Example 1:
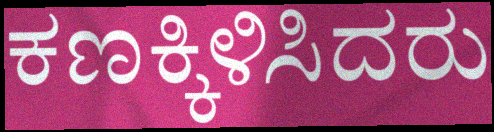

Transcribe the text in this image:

ಕಣಕ್ಕಿಳಿಸಿದರು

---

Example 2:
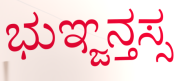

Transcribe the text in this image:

ಭುಞ್ಜನ್ತಸ್ಸ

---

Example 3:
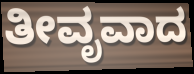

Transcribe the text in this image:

ತೀವೃವಾದ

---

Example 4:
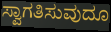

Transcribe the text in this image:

ಸ್ವಾಗತಿಸುವುದೂ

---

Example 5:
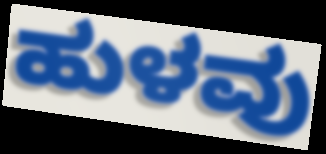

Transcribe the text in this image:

ಹುಳವು